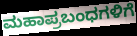
ಮಹಾಪ್ರಬಂಧಗಳಿಗೆ